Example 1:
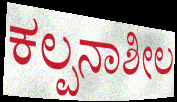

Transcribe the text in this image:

ಕಲ್ಪನಾಶೀಲ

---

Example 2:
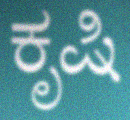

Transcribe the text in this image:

ಕೃಷಿ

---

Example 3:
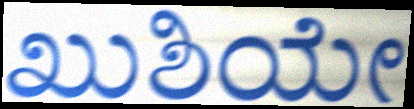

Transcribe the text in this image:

ಖುಶಿಯೇ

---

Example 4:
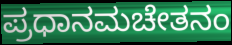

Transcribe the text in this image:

ಪ್ರಧಾನಮಚೇತನಂ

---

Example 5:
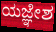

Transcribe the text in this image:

ಯಜ್ಞೇಶ